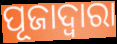
ପୂଜାଦ୍ୱାରା